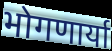
भोगणार्या